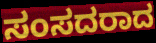
ಸಂಸದರಾದ